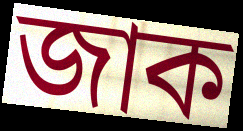
জাক